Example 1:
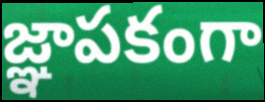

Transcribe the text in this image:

జ్ఞాపకంగా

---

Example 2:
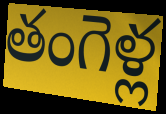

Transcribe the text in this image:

తంగెళ్ల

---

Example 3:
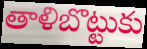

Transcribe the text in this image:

తాళిబొట్టుకు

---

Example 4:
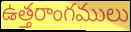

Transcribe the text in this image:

ఉత్తరాంగములు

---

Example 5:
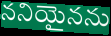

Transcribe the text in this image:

ననియైనను